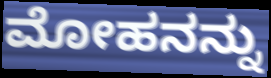
ಮೋಹನನ್ನು